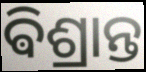
ଵିଶ୍ରାନ୍ତ